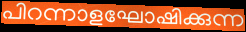
പിറന്നാളഘോഷിക്കുന്ന